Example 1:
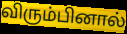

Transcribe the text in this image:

விரும்பினால்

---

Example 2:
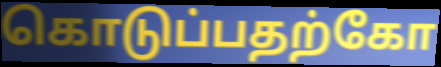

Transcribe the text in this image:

கொடுப்பதற்கோ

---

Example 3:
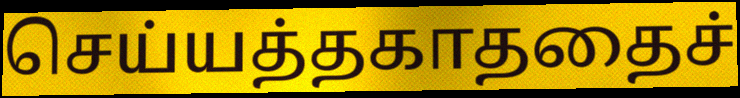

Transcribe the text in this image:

செய்யத்தகாததைச்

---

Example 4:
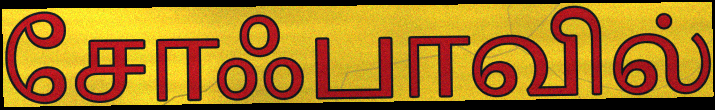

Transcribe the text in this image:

சோஃபாவில்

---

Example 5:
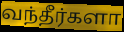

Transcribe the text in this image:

வந்தீர்களா